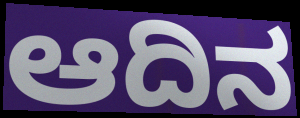
ಆದಿನ